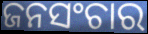
ଜନସଂଚାର